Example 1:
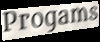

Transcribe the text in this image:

Progams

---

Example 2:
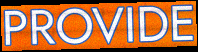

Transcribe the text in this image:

PROVIDE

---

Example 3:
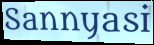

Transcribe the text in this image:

Sannyasi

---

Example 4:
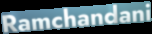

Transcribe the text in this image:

Ramchandani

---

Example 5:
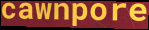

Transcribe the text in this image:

cawnpore